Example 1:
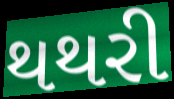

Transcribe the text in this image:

થથરી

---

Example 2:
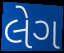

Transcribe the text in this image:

લેગ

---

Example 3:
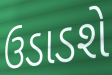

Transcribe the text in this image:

ઉડાડશે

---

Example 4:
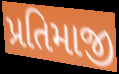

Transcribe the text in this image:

પ્રતિમાજી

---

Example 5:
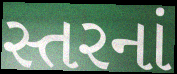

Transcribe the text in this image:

સ્તરનાં